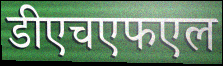
डीएचएफएल